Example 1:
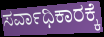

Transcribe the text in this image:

ಸರ್ವಾಧಿಕಾರಕ್ಕೆ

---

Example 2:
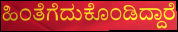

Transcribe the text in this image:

ಹಿಂತೆಗೆದುಕೊಂಡಿದ್ದಾರೆ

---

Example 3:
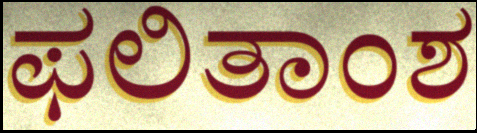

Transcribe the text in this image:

ಫಲಿತಾಂಶ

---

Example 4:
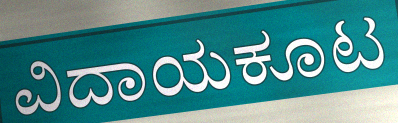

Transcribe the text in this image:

ವಿದಾಯಕೂಟ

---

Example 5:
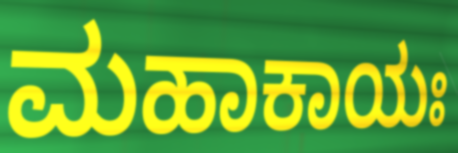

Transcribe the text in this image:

ಮಹಾಕಾಯಃ